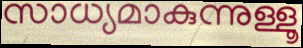
സാധ്യമാകുന്നുള്ളൂ